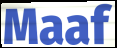
Maaf